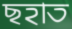
ছহাত